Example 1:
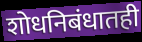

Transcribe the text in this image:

शोधनिबंधातही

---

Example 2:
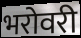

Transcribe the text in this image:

भरोवरी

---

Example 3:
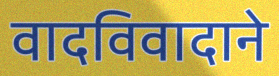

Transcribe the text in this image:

वादविवादाने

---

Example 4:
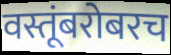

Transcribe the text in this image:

वस्तूंबरोबरच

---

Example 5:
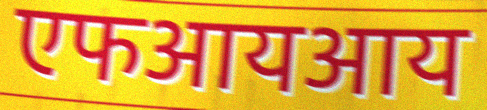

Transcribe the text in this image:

एफआयआय